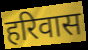
हरिवास